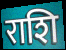
राशि